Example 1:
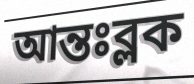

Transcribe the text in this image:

আন্তঃব্লক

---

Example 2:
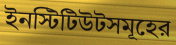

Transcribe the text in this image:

ইনস্টিটিউটসমূহের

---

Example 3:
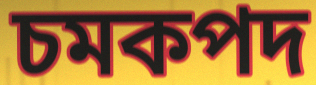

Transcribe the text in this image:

চমকপদ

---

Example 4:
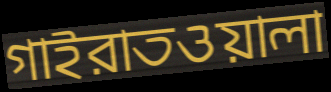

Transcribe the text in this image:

গাইরাতওয়ালা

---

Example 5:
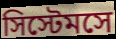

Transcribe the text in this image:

সিস্টেমসে